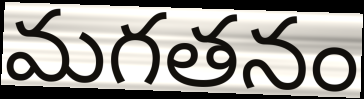
మగతనం